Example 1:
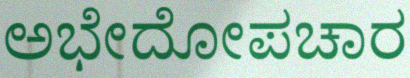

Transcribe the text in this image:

ಅಭೇದೋಪಚಾರ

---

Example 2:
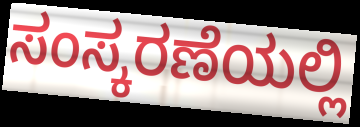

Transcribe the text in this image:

ಸಂಸ್ಕರಣೆಯಲ್ಲಿ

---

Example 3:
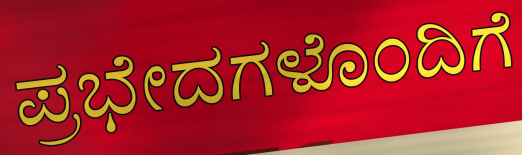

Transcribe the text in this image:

ಪ್ರಭೇದಗಳೊಂದಿಗೆ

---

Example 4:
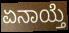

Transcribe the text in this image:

ಏನಾಯ್ತೆ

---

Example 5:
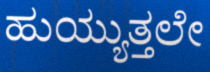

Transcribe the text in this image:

ಹುಯ್ಯುತ್ತಲೇ